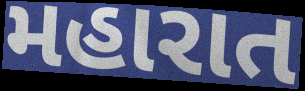
મહારાત